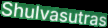
Shulvasutras